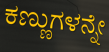
ಕಣ್ಣುಗಳನ್ನೇ